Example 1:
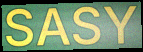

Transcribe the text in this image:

SASY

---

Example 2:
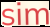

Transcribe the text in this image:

sim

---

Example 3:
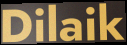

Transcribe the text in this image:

Dilaik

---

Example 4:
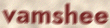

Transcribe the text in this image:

vamshee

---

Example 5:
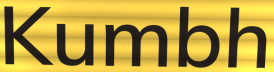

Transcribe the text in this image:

Kumbh